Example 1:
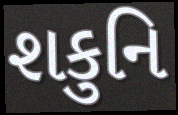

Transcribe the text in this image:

શકુનિ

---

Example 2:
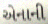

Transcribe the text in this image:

એનાની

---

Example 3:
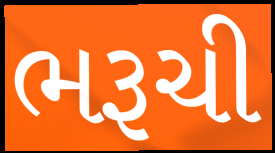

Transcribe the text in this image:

ભરૂચી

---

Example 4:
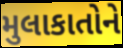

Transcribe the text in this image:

મુલાકાતોને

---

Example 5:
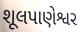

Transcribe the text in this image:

શૂલપાણેશ્વર